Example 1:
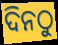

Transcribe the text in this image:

ଦିନଠୁ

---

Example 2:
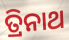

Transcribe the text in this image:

ତ୍ରିନାଥ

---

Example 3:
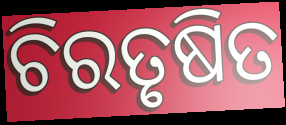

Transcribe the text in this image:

ଚିରତୃଷିତ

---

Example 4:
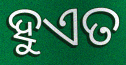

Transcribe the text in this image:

ହୁଏତ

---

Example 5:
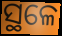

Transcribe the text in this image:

ସ୍ଥଳେ